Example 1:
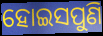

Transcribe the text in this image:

ହୋଇସପୁଣି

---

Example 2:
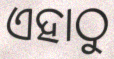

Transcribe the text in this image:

ଏହାଠୁ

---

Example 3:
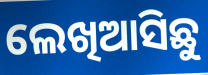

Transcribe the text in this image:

ଲେଖିଆସିଛୁ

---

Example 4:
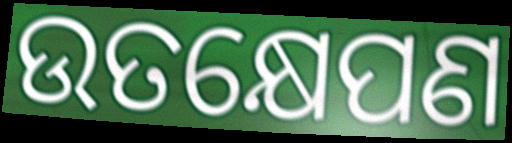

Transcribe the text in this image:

ଉତକ୍ଷେପଣ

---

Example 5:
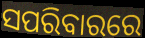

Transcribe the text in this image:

ସପରିବାରରେ